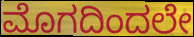
ಮೊಗದಿಂದಲೇ